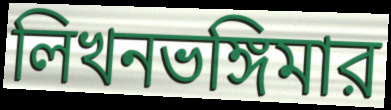
লিখনভঙ্গিমার